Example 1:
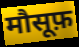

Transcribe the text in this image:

मौसूफ़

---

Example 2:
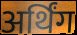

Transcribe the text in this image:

अर्थिंग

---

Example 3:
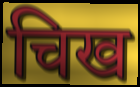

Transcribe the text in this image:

चिख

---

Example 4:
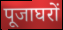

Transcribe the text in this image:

पूजाघरों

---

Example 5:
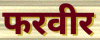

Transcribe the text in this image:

फरवीर